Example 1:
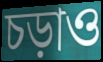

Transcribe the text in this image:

চড়াও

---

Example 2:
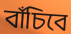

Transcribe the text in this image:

বাঁচিবে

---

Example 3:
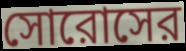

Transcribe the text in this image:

সোরোসের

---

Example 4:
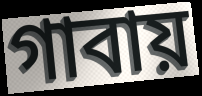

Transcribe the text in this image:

গাবায়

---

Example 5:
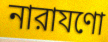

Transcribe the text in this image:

নারাযণো